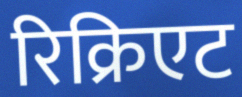
रिक्रिएट